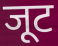
जूट